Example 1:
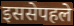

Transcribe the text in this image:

इससेपहले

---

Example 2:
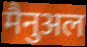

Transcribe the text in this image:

मैनुअल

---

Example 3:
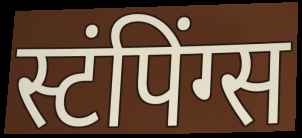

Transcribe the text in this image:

स्टंपिंग्स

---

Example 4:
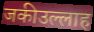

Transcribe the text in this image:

जकीउल्लाह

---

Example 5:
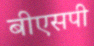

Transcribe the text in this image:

बीएसपी